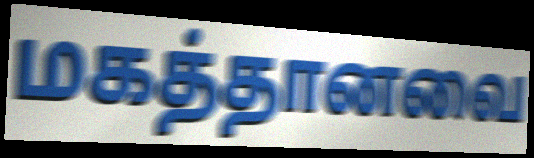
மகத்தானவை